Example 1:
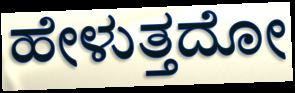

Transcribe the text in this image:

ಹೇಳುತ್ತದೋ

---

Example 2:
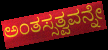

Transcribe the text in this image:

ಅಂತಸ್ಸತ್ವವನ್ನೇ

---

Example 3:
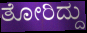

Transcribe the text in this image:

ತೋರಿದ್ದು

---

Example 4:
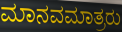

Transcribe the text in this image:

ಮಾನವಮಾತ್ರರು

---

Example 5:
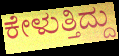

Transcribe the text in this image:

ಕೇಳುತ್ತಿದ್ದು